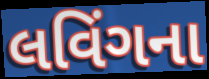
લવિંગના